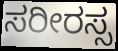
ಸರೀರಸ್ಸ